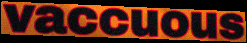
vaccuous